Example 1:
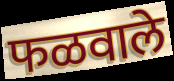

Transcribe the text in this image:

फळवाले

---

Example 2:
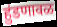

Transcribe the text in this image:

हुंडणावळ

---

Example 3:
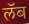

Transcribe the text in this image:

लॅब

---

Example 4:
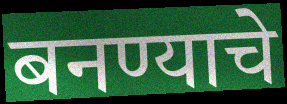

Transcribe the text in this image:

बनण्याचे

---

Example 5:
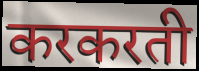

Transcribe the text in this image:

करकरती